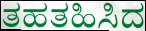
ತಹತಹಿಸಿದ